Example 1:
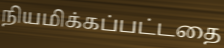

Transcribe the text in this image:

நியமிக்கப்பட்டதை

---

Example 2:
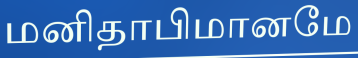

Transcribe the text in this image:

மனிதாபிமானமே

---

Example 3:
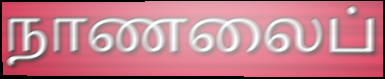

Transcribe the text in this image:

நாணலைப்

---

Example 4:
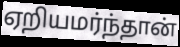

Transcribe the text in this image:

ஏறியமர்ந்தான்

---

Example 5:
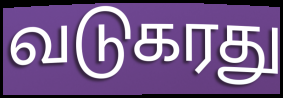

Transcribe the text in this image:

வடுகரது